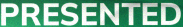
PRESENTED